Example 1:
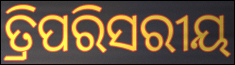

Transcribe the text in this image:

ତ୍ରିପରିସରୀୟ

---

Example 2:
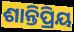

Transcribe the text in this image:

ଶାନ୍ତିପ୍ରିୟ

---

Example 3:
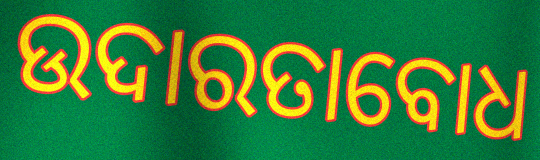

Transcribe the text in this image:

ଉଦାରତାବୋଧ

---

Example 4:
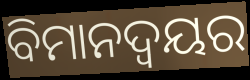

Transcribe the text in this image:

ବିମାନଦ୍ବୟର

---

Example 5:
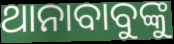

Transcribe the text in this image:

ଥାନାବାବୁଙ୍କୁ